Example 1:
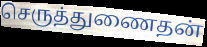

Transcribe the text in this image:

செருத்துணைதன்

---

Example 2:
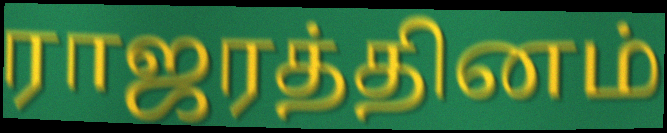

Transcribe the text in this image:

ராஜரத்தினம்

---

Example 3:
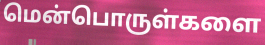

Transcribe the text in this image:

மென்பொருள்களை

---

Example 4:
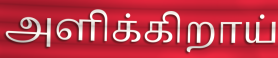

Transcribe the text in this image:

அளிக்கிறாய்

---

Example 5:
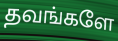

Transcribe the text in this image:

தவங்களே